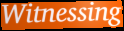
Witnessing